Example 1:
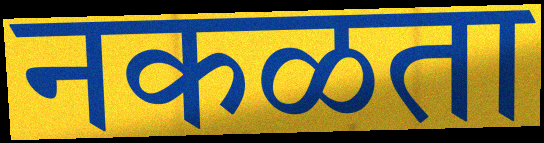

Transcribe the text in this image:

नकळता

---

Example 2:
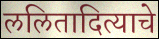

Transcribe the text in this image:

ललितादित्याचे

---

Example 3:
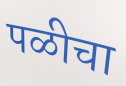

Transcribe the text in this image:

पळीचा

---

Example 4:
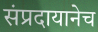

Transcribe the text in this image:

संप्रदायानेच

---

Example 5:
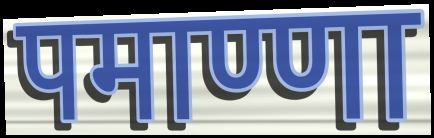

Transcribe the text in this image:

पमाण्णा